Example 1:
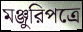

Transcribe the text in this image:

মঞ্জুরিপত্রে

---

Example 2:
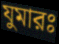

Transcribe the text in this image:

যুমারঃ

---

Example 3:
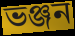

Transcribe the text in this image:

ভঞ্জন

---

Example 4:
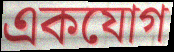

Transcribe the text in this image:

একযোগ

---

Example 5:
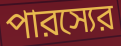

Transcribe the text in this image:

পারস্যের